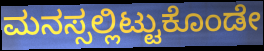
ಮನಸ್ಸಲ್ಲಿಟ್ಟುಕೊಂಡೇ